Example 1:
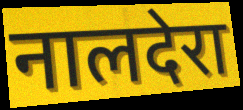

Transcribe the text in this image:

नालदेरा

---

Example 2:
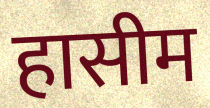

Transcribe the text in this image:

हासीम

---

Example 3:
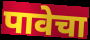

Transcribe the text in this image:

पावेचा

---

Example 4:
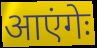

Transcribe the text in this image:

आएंगेः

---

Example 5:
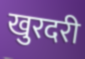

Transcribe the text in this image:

खुरदरी